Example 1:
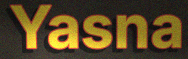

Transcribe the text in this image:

Yasna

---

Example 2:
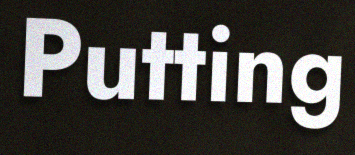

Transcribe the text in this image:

Putting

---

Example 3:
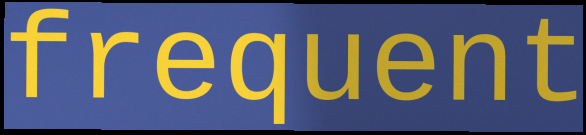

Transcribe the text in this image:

frequent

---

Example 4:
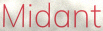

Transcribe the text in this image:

Midant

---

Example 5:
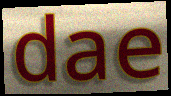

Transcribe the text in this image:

dae